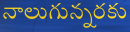
నాలుగున్నరకు